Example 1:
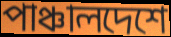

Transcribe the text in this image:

পাঞ্চালদেশে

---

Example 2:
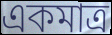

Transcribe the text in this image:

একমাত্র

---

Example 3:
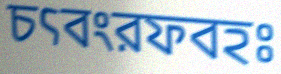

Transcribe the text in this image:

চৎবংরফবহঃ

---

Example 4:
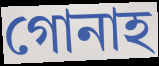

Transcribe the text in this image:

গোনাহ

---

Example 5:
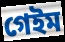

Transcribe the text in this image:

গেইম